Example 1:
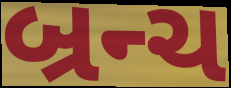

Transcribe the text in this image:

બ્રન્ચ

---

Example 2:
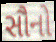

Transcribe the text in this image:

સૌનો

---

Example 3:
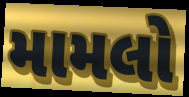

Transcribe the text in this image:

મામલો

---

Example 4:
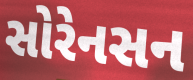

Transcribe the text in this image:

સોરેનસન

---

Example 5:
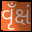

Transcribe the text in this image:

વૃઁક્ષં